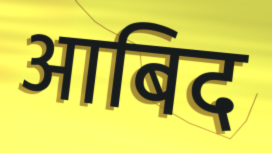
आबिद